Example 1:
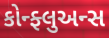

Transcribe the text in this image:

કોન્ફ્લુઅન્સ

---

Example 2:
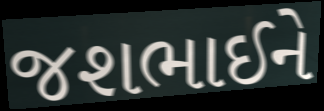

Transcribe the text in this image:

જશભાઈને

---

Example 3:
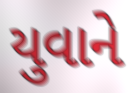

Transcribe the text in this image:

યુવાને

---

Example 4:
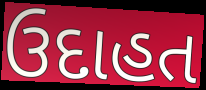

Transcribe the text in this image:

ઉદાહત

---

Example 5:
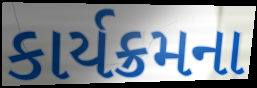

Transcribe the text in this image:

કાર્યક્રમના